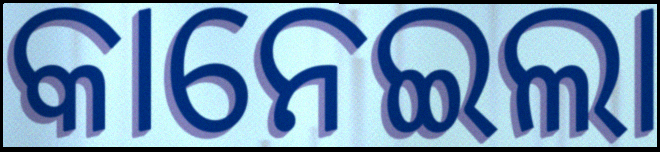
କାନେଇଲା